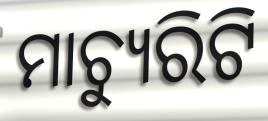
ମାଚ୍ୟୁରିଟି